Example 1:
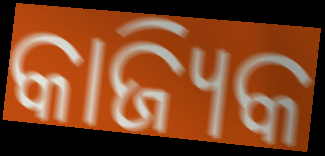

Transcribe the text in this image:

କାଜ୍ୟିକ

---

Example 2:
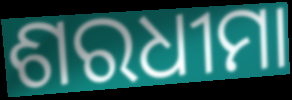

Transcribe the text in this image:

ଶରଧୀମା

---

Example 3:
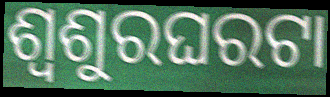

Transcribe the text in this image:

ଶ୍ୱଶୁରଘରଟା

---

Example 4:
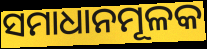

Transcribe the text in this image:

ସମାଧାନମୂଳକ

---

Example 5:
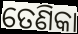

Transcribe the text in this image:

ତେଣିକା